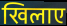
खिलाए